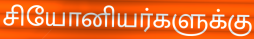
சியோனியர்களுக்கு